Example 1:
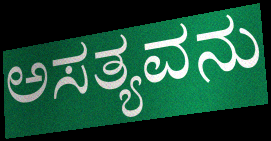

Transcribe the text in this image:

ಅಸತ್ಯವನು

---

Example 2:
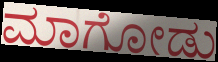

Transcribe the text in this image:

ಮಾಗೋಡು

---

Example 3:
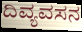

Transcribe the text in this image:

ದಿವ್ಯವಸನ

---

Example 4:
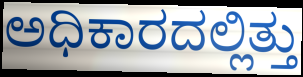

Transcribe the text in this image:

ಅಧಿಕಾರದಲ್ಲಿತ್ತು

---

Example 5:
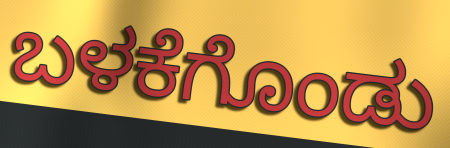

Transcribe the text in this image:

ಬಳಕೆಗೊಂಡು